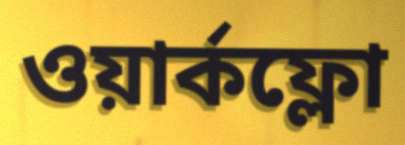
ওয়ার্কফ্লো